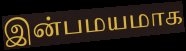
இன்பமயமாக